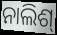
ନାଲିଶ୍